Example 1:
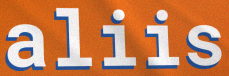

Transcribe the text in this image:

aliis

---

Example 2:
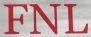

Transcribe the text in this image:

FNL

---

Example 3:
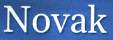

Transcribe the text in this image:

Novak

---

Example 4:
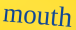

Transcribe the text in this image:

mouth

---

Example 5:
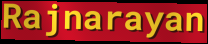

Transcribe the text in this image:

Rajnarayan